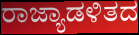
ರಾಜ್ಯಾಡಳಿತದ